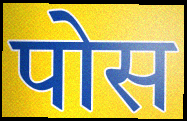
पोस